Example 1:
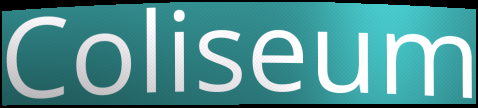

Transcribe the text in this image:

Coliseum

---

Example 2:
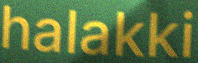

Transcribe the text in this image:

halakki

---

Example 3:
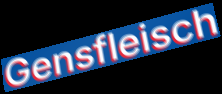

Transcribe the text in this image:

Gensfleisch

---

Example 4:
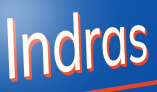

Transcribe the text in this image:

Indras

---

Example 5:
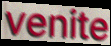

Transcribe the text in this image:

venite